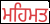
ਮਹਿਮਤ